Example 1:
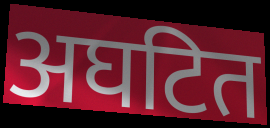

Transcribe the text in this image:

अघटित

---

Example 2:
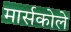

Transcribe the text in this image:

मार्सकोले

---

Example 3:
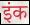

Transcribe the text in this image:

इंक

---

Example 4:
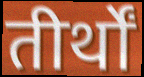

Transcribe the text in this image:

तीर्थों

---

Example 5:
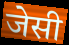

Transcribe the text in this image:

जेसी